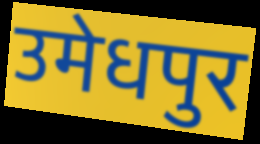
उमेधपुर